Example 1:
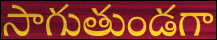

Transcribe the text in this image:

సాగుతుండగా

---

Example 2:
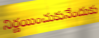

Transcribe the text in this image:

నిర్ణయించుకునేందుకు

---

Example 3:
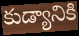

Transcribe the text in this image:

కుడ్యానికి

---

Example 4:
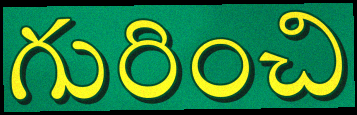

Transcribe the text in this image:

గురించి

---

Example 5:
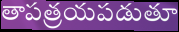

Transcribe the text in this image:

తాపత్రయపడుతూ